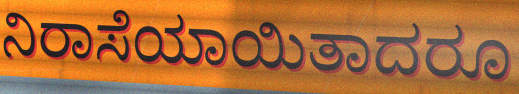
ನಿರಾಸೆಯಾಯಿತಾದರೂ